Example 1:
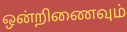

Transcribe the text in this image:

ஒன்றிணைவும்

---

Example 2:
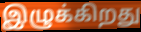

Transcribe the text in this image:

இழுக்கிறது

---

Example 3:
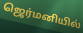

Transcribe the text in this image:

ஜெர்மனியில்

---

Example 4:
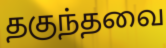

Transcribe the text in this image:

தகுந்தவை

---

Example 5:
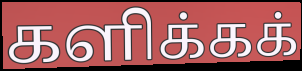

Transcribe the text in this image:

களிக்கக்